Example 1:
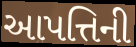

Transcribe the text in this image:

આપત્તિની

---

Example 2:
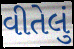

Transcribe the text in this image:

વીતેલું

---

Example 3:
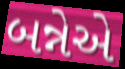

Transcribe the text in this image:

બન્નેએ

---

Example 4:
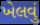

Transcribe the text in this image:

ખેલવું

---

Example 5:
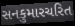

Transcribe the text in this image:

સનકુમારચરિત